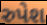
રુપેશ